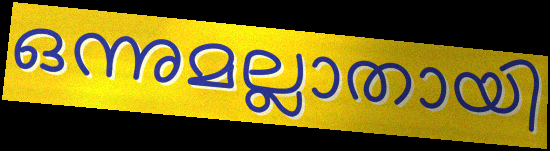
ഒന്നുമല്ലാതായി